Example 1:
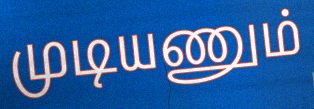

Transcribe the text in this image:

முடியணும்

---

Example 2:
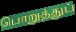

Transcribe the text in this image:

பொறுத்துப்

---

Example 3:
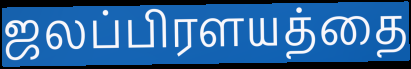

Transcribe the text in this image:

ஜலப்பிரளயத்தை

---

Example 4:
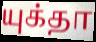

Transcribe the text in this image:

யுக்தா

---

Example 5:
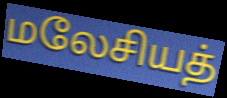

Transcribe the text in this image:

மலேசியத்